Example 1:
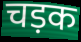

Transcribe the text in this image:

चड़क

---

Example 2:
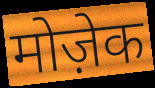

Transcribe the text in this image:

मोज़ेक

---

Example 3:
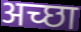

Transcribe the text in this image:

अच्छा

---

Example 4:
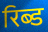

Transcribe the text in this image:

रिब्ड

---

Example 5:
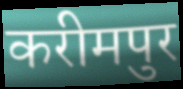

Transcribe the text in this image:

करीमपुर